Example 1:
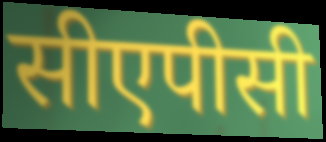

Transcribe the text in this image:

सीएपीसी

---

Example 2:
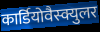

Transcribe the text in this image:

कार्डियोवैस्क्युलर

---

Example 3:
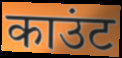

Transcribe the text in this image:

काउंट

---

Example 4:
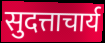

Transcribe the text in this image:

सुदत्ताचार्य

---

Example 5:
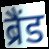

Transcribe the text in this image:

ब्रैंड